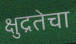
क्षुद्रतेचा